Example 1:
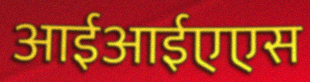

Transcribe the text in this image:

आईआईएएस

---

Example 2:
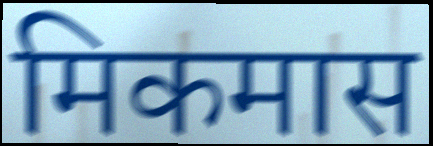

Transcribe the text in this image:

मिकमास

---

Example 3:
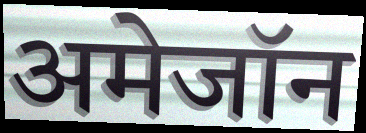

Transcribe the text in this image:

अमेजॉन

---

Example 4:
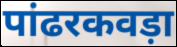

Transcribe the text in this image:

पांढरकवड़ा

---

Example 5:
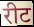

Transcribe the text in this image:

रीट